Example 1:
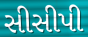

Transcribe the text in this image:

સીસીપી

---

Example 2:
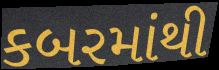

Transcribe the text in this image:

કબરમાંથી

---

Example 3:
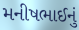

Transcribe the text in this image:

મનીષભાઈનું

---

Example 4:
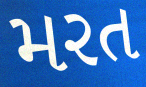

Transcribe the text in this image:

મરત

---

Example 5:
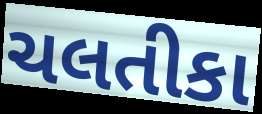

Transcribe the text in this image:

ચલતીકા